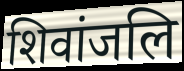
शिवांजलि